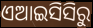
ଏଆଇସିସିରୁ